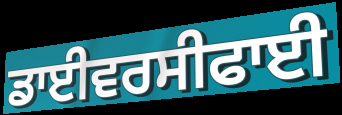
ਡਾਈਵਰਸੀਫਾਈ